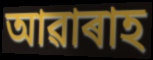
আৱাৰাহ